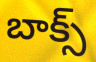
బాక్స్